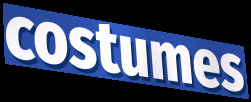
costumes